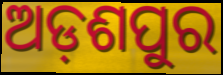
ଅଡ଼ଶପୁର